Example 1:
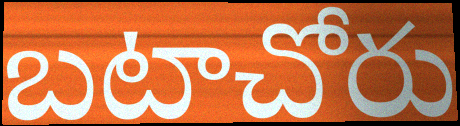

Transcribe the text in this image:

బటాచోరు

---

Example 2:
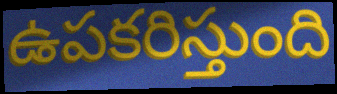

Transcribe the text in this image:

ఉపకరిస్తుంది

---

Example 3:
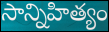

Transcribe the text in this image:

సాన్నిహిత్యం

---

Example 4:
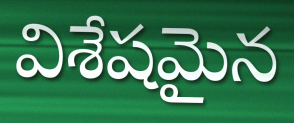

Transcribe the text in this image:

విశేషమైన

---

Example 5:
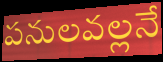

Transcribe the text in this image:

పనులవల్లనే